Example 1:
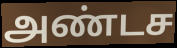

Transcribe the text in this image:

அண்டச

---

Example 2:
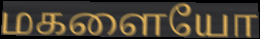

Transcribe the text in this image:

மகளையோ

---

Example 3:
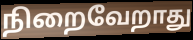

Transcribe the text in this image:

நிறைவேறாது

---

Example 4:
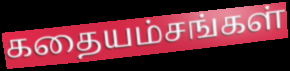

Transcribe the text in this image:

கதையம்சங்கள்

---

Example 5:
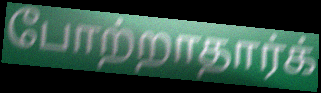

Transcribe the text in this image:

போற்றாதார்க்